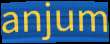
anjum